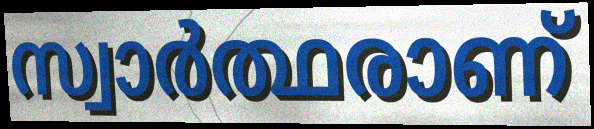
സ്വാർത്ഥരാണ്